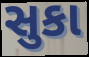
સુકા